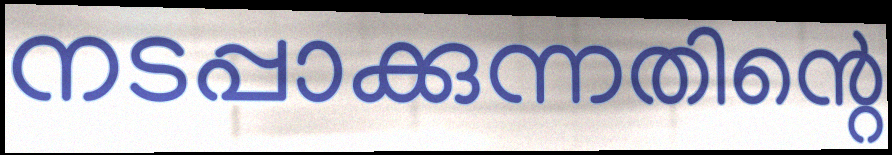
നടപ്പാക്കുന്നതിന്റെ